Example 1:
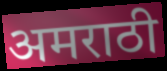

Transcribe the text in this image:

अमराठी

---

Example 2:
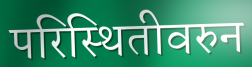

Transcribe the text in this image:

परिस्थितीवरुन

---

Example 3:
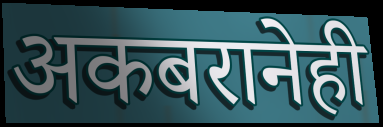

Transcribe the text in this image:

अकबरानेही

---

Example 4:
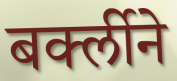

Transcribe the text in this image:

बर्क्लीने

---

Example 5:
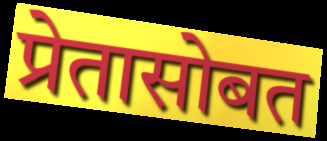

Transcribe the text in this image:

प्रेतासोबत